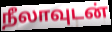
நீலாவுடன்